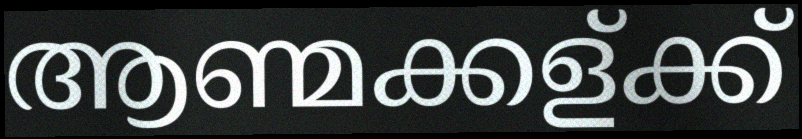
ആണ്മക്കള്ക്ക്